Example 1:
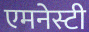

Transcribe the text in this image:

एमनेस्टी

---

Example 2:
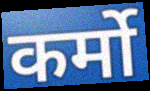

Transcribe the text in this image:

कर्मो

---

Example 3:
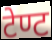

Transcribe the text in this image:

टेण्ट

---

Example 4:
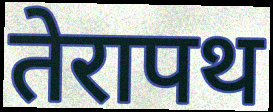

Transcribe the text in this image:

तेरापथ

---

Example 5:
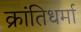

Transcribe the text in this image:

क्रांतिधर्मा